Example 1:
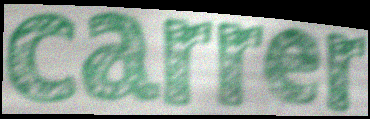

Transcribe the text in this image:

carrer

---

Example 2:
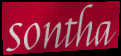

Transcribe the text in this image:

sontha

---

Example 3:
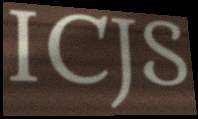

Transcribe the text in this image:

ICJS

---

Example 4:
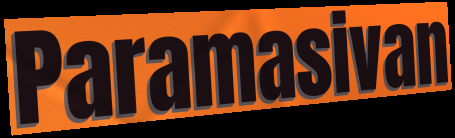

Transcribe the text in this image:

Paramasivan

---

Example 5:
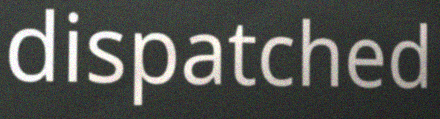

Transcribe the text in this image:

dispatched